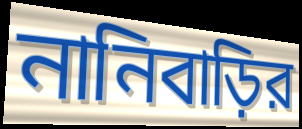
নানিবাড়ির